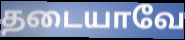
தடையாவே